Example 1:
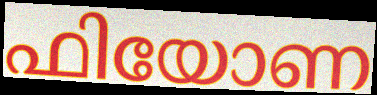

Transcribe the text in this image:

ഫിയോണ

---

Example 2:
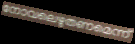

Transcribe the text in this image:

നോവലെഴുതണമെന്ന്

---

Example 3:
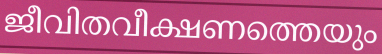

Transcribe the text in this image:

ജീവിതവീക്ഷണത്തെയും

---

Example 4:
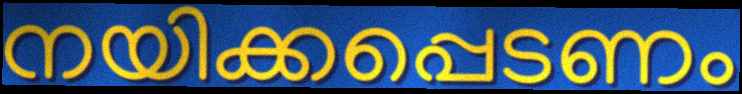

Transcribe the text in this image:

നയിക്കപ്പെടണം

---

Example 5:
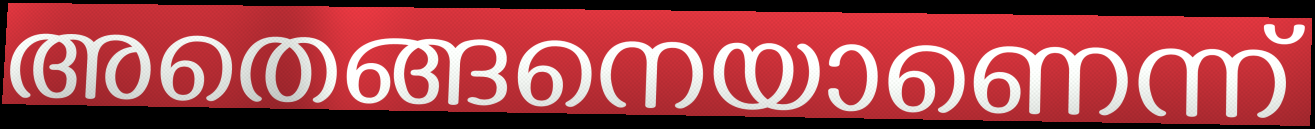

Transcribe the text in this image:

അതെങ്ങനെയാണെന്ന്